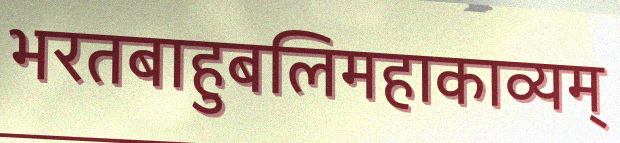
भरतबाहुबलिमहाकाव्यम्